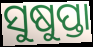
ସୁଷୁପ୍ତା